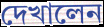
দেখালেন